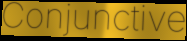
Conjunctive